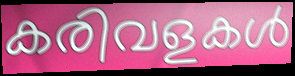
കരിവളകൾ